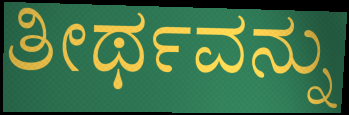
ತೀರ್ಥವನ್ನು